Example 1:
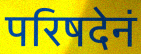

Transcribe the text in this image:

परिषदेनं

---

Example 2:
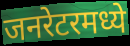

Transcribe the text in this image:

जनरेटरमध्ये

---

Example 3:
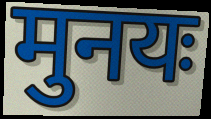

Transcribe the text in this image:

मुनयः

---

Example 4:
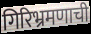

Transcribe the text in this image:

गिरिभ्रमणाची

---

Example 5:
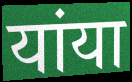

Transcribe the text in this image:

यांया